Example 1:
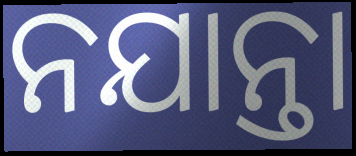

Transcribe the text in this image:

ନଯାନ୍ତା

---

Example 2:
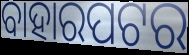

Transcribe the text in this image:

ବାହାରପଟର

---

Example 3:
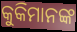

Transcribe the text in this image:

କୁକିମାନଙ୍କ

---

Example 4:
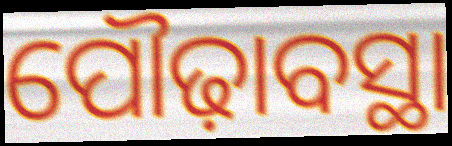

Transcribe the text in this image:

ପୌଢ଼ାବସ୍ଥା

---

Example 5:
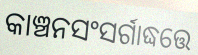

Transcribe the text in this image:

କାଞ୍ଚନସଂସର୍ଗାଦ୍ଧତ୍ତେ